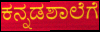
ಕನ್ನಡಶಾಲೆಗೆ